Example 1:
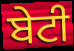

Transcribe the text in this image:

ਬੇਟੀ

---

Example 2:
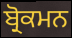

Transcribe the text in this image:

ਬ੍ਰੋਕਮਨ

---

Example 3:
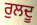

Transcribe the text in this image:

ਰੁਲਦੂ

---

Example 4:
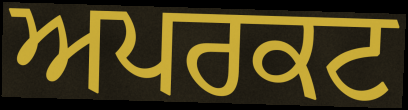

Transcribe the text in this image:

ਅਪਰਕਟ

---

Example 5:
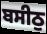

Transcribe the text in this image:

ਬਸੀਠੁ